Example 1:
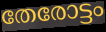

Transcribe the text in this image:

തേരോട്ടം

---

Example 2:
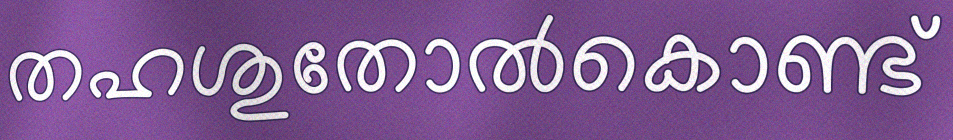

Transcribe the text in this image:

തഹശുതോൽകൊണ്ട്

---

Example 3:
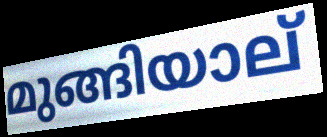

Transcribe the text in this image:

മുങ്ങിയാല്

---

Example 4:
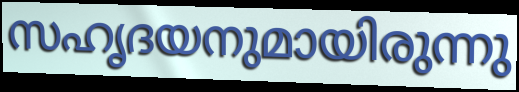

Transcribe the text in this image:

സഹൃദയനുമായിരുന്നു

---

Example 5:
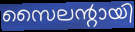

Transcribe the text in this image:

സൈലന്റായി